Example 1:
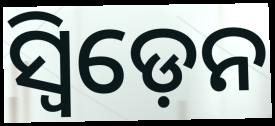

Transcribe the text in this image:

ସ୍ବିଡ଼େନ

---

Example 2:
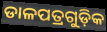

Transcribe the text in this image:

ଡାଳପତ୍ରଗୁଡ଼ିକ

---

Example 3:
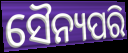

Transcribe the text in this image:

ସୈନ୍ୟପରି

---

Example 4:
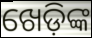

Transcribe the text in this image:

ଖେଡ଼ିଙ୍କ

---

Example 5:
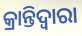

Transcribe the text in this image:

କ୍ରାନ୍ତିଦ୍ୱାରା